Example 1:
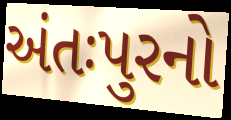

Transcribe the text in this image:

અંતઃપુરનો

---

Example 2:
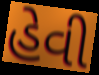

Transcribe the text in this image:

હેવી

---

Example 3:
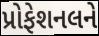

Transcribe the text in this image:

પ્રોફેશનલને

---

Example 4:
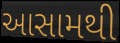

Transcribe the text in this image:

આસામથી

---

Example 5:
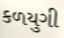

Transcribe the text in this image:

કળયુગી